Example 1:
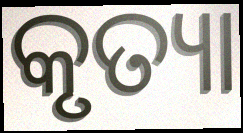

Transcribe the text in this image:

କୃତ୍ୟା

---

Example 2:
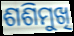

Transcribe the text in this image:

ଶଶିମୁଖି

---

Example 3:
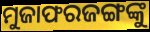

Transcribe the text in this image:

ମୁଜାଫରଜଙ୍ଗଙ୍କୁ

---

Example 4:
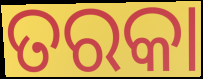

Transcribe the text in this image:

ତରକା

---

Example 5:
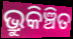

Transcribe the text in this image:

ଭ୍ରୁକିଞ୍ଚିତ